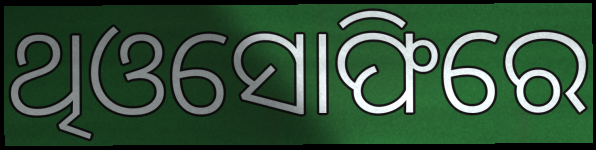
ଥିଓସୋଫିରେ